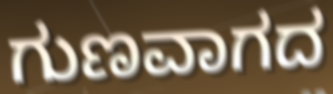
ಗುಣವಾಗದ